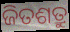
ଜିତଶତ୍ରୁ